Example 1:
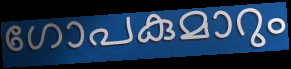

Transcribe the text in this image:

ഗോപകുമാറും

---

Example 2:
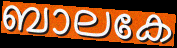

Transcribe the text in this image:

ബാലകേ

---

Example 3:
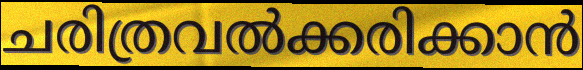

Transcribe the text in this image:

ചരിത്രവൽക്കരിക്കാൻ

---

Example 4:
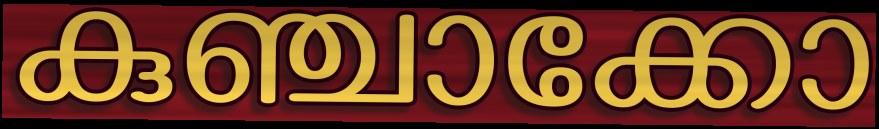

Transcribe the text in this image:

കുഞ്ചാക്കോ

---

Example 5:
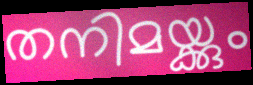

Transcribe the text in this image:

തനിമയ്ക്കും